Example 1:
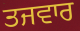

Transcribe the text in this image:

ਤਜਵਾਰ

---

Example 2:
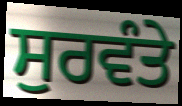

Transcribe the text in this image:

ਸੁਰਵੰਤੇ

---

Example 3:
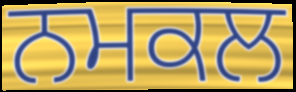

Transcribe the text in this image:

ਨਮਕਲ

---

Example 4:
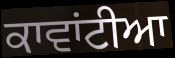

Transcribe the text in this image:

ਕਾਵਾਂਟੀਆ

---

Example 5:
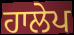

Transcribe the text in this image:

ਹਾਲੇਪ